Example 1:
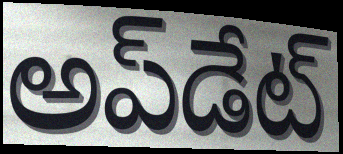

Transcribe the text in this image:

అప్‌డేట్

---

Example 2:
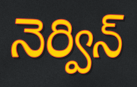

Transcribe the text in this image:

నెర్విన్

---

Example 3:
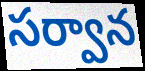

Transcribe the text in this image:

సర్వాన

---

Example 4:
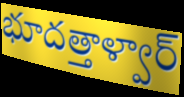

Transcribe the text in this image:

భూదత్తాళ్వార్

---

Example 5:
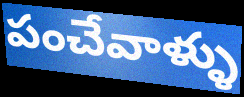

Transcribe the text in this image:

పంచేవాళ్ళు